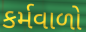
કર્મવાળો